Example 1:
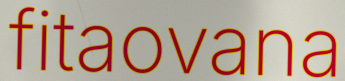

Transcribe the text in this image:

fitaovana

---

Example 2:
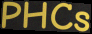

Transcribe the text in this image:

PHCs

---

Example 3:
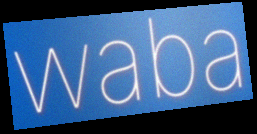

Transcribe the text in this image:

waba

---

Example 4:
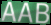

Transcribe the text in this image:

AAB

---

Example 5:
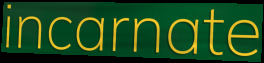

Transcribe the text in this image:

incarnate